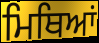
ਮਿਥਿਆਂ